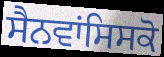
ਸੈਨਵਾਂਸਿਸਕੋ